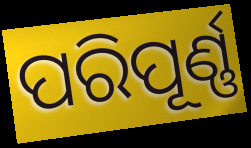
ପରିପୂର୍ଣ୍ଣ